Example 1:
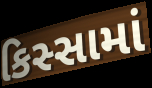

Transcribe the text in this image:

કિસ્સામાં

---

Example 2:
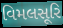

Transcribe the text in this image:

વિમલસૂરિ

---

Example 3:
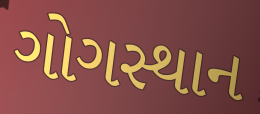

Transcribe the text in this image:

ગોગસ્થાન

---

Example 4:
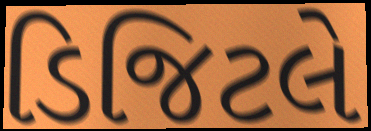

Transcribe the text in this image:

ડિજિટલે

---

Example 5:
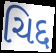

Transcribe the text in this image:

ચિદ્દ